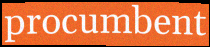
procumbent